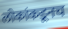
लोकांकडूनच